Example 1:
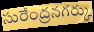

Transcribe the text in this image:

సురేంద్రనగర్కు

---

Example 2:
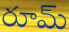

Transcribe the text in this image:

రూమ్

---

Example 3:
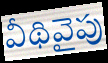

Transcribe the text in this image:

వీథివైపు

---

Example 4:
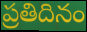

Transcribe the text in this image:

ప్రతిదినం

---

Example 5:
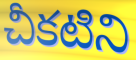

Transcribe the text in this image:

చీకటిని